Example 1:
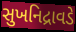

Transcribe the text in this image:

સુખનિદ્રાવડે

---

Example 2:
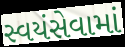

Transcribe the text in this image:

સ્વયંસેવામાં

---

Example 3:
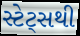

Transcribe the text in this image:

સ્ટેટ્સથી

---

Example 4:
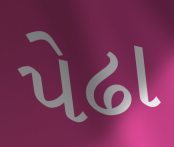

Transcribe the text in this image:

પેઢા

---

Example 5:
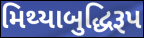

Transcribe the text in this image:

મિથ્યાબુદ્ધિરૂપ